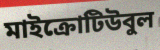
মাইক্রোটিউবুল